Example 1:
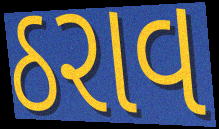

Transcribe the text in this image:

ઠરાવ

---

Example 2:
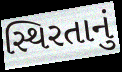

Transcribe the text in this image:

સ્થિરતાનું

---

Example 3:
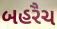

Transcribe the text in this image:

બહરૈચ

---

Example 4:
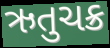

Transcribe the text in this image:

ઋતુચક્ર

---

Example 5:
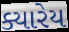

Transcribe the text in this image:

ક્યારેય